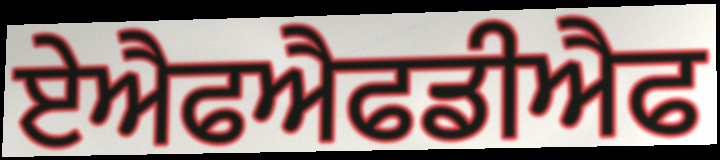
ਏਐਫਐਫਡੀਐਫ